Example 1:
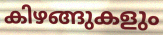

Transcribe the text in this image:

കിഴങ്ങുകളും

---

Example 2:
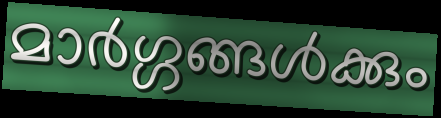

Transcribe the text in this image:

മാർഗ്ഗങ്ങൾക്കും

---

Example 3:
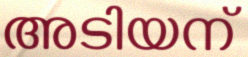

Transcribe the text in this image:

അടിയന്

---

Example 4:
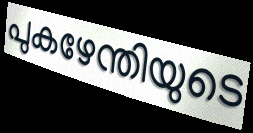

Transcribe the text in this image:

പുകഴേന്തിയുടെ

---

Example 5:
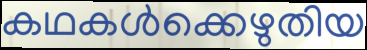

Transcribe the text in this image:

കഥകൾക്കെഴുതിയ